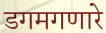
डगमगणारे